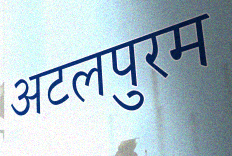
अटलपुरम